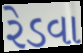
રેડવા